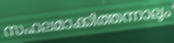
സഫലമാക്കിത്തന്നാലും